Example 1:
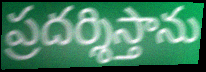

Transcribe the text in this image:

ప్రదర్శిస్తాను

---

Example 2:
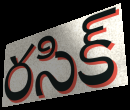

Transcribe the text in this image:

రసిక్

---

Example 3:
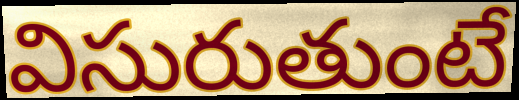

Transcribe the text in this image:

విసురుతుంటే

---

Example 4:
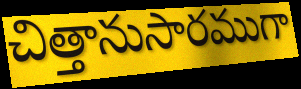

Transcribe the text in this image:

చిత్తానుసారముగా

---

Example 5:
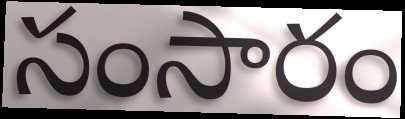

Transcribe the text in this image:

సంసారం